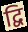
द्वि